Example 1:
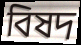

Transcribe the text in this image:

বিষদ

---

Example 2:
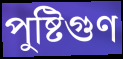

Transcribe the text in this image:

পুষ্টিগুণ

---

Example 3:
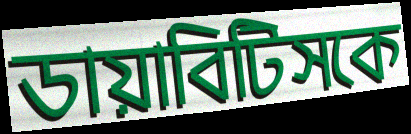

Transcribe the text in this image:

ডায়াবিটিসকে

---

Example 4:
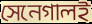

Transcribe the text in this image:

সেনেগালই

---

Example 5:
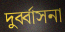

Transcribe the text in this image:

দুর্ব্বাসনা